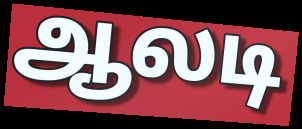
ஆலடி